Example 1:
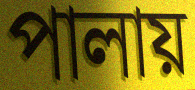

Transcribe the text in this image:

পালায়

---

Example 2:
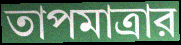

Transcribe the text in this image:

তাপমাত্রার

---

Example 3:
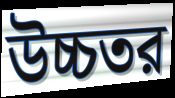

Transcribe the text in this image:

উচ্চতর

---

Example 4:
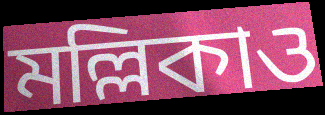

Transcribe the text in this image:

মল্লিকাও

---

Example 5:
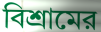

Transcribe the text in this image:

বিশ্রামের